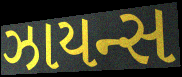
ઝાયન્સ